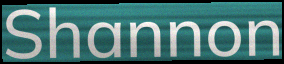
Shannon